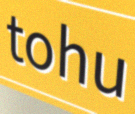
tohu